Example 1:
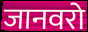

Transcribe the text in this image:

जानवरो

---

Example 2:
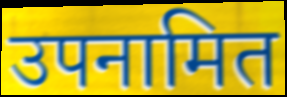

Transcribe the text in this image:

उपनामित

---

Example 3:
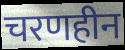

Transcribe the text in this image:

चरणहीन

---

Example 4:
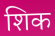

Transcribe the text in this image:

शिक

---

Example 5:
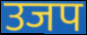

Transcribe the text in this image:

उजप